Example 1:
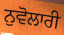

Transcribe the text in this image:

ਨੁਵੋਲਾਰੀ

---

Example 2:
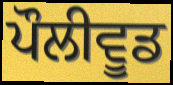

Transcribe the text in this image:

ਪੌਲੀਵੂਡ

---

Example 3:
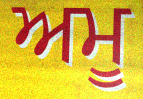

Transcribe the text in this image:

ਅਮੂ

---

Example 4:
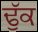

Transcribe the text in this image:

ਢੁੱਕ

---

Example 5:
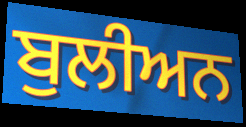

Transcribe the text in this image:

ਬੁਲੀਅਨ